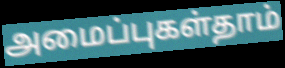
அமைப்புகள்தாம்